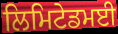
ਲਿਮਿਟੇਡਮਈ